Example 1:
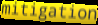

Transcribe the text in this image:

mitigation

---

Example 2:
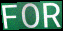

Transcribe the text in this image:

FOR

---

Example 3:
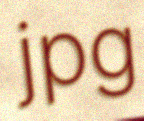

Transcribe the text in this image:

jpg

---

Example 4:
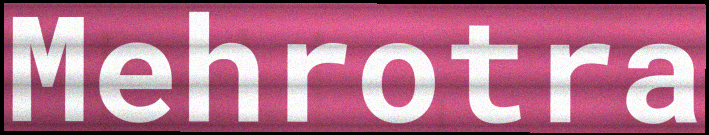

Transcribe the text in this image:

Mehrotra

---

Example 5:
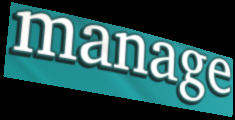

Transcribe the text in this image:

manage